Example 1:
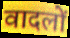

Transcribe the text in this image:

वादलों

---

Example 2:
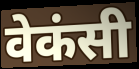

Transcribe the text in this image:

वेकंसी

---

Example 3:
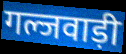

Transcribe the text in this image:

गल्जवाड़ी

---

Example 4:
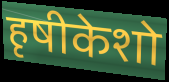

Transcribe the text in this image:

हृषीकेशो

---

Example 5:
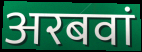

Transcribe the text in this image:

अरबवां